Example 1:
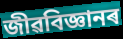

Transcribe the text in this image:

জীৱবিজ্ঞানৰ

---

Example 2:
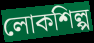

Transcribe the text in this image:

লোকশিল্প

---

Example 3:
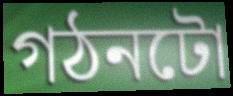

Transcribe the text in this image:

গঠনটো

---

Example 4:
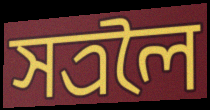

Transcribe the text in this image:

সত্ৰলৈ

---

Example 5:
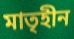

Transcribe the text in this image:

মাতৃহীন